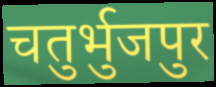
चतुर्भुजपुर